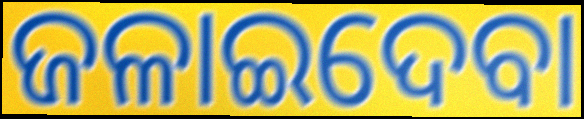
ଜଳାଇଦେବା